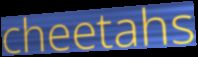
cheetahs